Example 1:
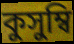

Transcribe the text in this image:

কুসুম্বি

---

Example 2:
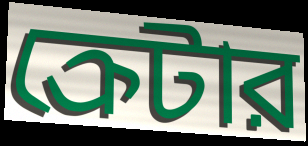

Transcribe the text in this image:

ক্রেটার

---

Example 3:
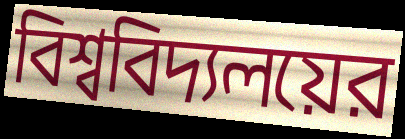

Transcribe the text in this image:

বিশ্ববিদ্যলয়ের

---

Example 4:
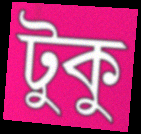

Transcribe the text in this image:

টুকু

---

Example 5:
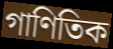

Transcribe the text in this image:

গাণিতিক